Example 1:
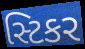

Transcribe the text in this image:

સ્ટિકર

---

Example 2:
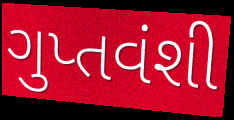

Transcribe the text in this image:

ગુપ્તવંશી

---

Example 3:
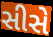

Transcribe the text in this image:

સીસે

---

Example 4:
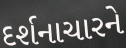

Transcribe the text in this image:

દર્શનાચારને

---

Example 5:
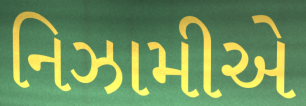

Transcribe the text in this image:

નિઝામીએ